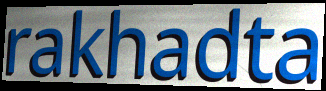
rakhadta